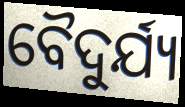
ବୈଦୁର୍ଯ୍ୟ